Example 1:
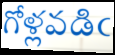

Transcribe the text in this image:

గోళ్లవడిఁ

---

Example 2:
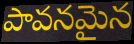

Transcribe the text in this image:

పావనమైన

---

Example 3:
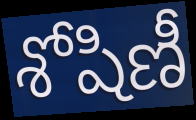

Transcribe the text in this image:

శోషిణీ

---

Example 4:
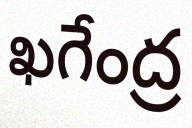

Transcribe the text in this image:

ఖగేంద్ర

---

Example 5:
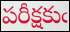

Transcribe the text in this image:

పరీక్షకుఁ